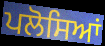
ਪਲੋਸਿਆਂ